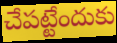
చేపట్టేందుకు